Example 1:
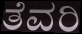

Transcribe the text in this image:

ತೆವರಿ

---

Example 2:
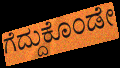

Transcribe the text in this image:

ಗೆದ್ದುಕೊಂಡೇ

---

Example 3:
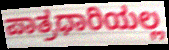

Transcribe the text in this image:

ಪಾತ್ರಧಾರಿಯಲ್ಲ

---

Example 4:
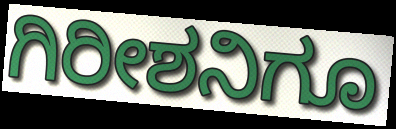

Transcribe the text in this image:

ಗಿರೀಶನಿಗೂ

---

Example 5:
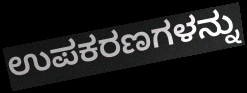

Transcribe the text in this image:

ಉಪಕರಣಗಳನ್ನು